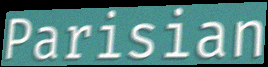
Parisian